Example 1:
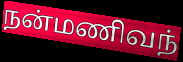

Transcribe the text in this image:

நன்மணிவந்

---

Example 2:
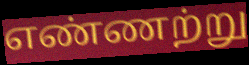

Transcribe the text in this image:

எண்ணற்று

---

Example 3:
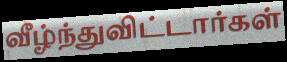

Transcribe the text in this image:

வீழ்ந்துவிட்டார்கள்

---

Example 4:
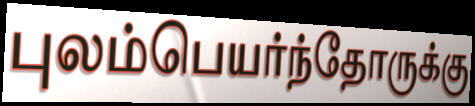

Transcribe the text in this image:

புலம்பெயர்ந்தோருக்கு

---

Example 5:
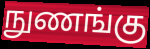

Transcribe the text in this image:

நுணங்கு